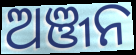
ଅଞ୍ଜନ